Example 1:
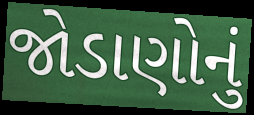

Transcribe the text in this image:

જોડાણોનું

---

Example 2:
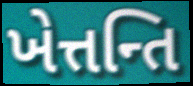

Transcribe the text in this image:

ખેત્તન્તિ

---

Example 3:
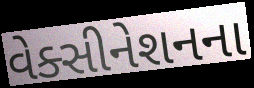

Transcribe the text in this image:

વેક્સીનેશનના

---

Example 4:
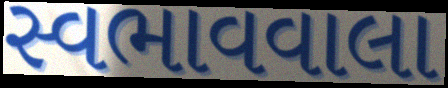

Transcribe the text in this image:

સ્વભાવવાલા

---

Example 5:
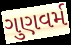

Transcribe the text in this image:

ગુણવર્મ